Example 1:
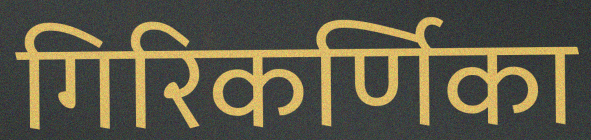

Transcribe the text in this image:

गिरिकर्णिका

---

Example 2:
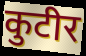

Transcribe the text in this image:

कुटीर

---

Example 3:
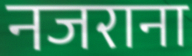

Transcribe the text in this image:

नजराना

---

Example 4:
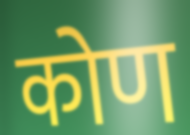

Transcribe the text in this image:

कोण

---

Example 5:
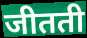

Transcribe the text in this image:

जीतती